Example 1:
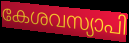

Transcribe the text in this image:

കേശവസ്യാപി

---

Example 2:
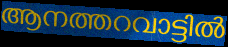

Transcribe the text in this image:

ആനത്തറവാട്ടിൽ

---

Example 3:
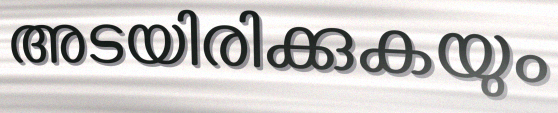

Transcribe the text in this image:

അടയിരിക്കുകയും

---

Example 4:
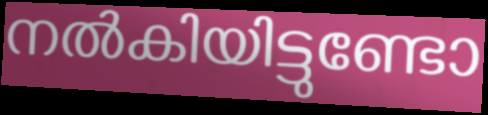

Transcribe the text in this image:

നൽകിയിട്ടുണ്ടോ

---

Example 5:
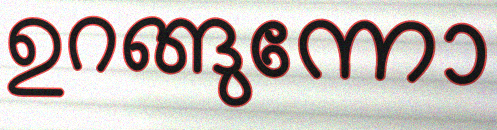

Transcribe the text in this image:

ഉറങ്ങുന്നോ